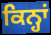
ਕਿਨ੍ਹਾਂ